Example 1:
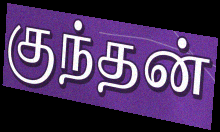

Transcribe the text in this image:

குந்தன்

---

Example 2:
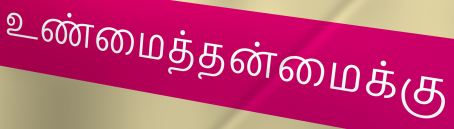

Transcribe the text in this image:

உண்மைத்தன்மைக்கு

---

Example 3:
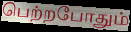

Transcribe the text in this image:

பெற்றபோதும்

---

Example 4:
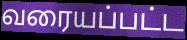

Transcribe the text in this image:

வரையப்பட்ட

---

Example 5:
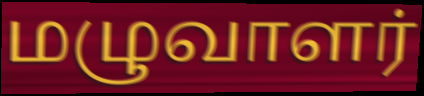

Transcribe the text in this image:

மழுவாளர்